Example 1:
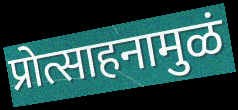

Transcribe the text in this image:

प्रोत्साहनामुळं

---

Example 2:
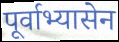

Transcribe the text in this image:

पूर्वाभ्यासेन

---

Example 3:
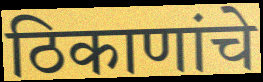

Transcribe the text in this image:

ठिकाणांचे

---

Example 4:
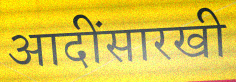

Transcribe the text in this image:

आदींसारखी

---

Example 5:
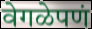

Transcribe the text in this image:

वेगळेपणं